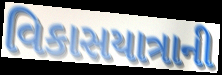
વિકાસયાત્રાની